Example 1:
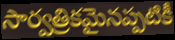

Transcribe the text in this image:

సార్వత్రికమైనప్పటికీ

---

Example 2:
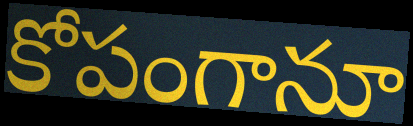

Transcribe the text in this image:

కోపంగానూ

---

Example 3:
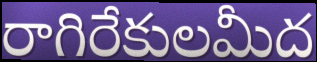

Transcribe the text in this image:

రాగిరేకులమీద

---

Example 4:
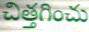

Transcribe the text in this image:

చిత్తగించు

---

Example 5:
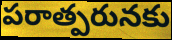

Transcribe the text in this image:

పరాత్పరునకు